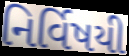
નિર્વિષયી